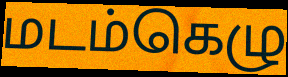
மடம்கெழு